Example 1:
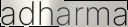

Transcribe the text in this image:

adharma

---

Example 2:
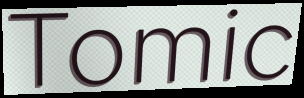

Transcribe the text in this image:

Tomic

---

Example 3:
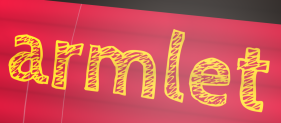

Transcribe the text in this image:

armlet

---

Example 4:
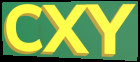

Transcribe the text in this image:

CXY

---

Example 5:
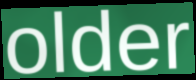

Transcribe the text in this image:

older